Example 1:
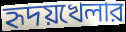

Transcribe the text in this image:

হৃদয়খেলার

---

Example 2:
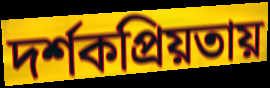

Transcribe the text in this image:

দর্শকপ্রিয়তায়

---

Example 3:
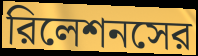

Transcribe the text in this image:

রিলেশনসের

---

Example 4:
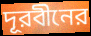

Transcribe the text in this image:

দূরবীনের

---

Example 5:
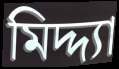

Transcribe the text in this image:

মিদ্দ্যা